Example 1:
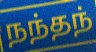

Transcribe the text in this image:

நந்தந்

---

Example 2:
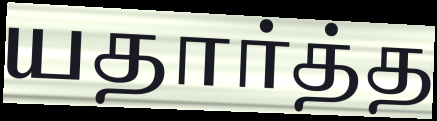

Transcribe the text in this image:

யதார்த்த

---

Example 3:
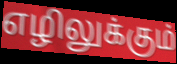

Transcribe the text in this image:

எழிலுக்கும்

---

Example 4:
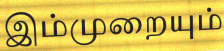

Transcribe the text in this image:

இம்முறையும்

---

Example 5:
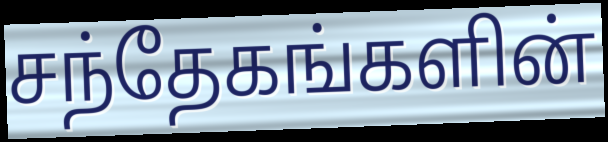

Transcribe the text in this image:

சந்தேகங்களின்